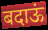
बदाऊं